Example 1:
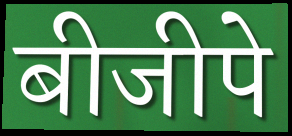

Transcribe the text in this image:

बीजीपे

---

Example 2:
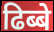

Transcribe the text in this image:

ढिब्बे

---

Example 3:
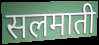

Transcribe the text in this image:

सलमाती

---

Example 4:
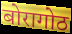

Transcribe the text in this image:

बोरागोठ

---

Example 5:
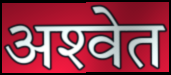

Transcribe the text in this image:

अश्‍वेत